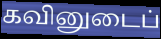
கவினுடைப்